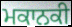
ਮਕਾਨਕੀ